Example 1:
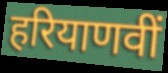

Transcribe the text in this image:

हरियाणवीं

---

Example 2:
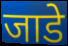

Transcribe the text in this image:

जाडे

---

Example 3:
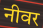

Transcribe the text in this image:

नीवर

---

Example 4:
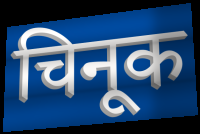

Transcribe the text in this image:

चिनूक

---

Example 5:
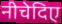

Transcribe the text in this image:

नीचेदिए